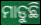
ମାଡୁଛି